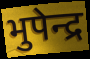
भुपेन्द्र